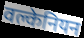
वल्केनियन